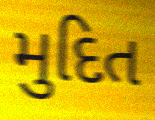
મુદિત